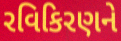
રવિકિરણને